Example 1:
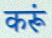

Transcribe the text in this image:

करूं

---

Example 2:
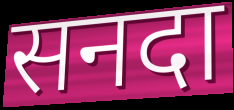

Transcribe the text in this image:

सनदा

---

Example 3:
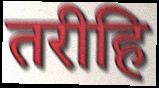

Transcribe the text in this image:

तरीहि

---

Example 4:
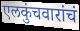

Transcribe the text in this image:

एलकुंचवारांचं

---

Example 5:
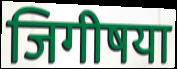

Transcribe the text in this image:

जिगीषया